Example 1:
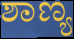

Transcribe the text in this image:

ಶಾಣ್ಯ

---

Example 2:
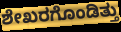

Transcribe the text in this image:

ಶೇಖರಗೊಂಡಿತ್ತು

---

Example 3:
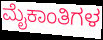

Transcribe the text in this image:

ಮೈಕಾಂತಿಗಳ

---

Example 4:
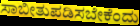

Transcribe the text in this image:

ಸಾಬೀತುಪಡಿಸಬೇಕೆಂದು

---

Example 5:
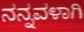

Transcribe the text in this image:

ನನ್ನವಳಾಗಿ